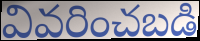
వివరించబడి